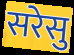
सरेसु